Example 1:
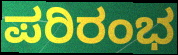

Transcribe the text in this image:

ಪರಿರಂಭ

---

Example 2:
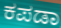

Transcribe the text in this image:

ಕಪಡಾ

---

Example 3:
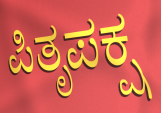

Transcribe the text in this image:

ಪಿತೃಪಕ್ಷ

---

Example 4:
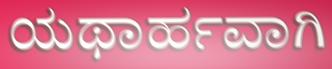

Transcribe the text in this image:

ಯಥಾರ್ಹವಾಗಿ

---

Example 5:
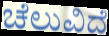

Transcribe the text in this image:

ಚೆಲುವಿದೆ